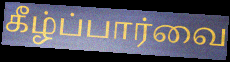
கீழ்ப்பார்வை